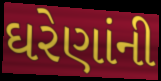
ઘરેણાંની